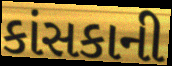
કાંસકાની